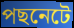
পছনেটে